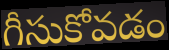
గీసుకోవడం